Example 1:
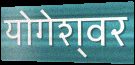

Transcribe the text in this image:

योगेश्वर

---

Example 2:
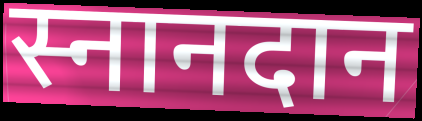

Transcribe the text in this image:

स्नानदान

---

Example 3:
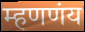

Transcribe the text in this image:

म्हणणंय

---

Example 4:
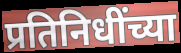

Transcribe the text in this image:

प्रतिनिधींच्या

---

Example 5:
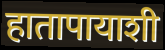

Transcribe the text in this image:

हातापायाशी